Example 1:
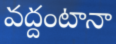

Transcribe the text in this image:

వద్దంటానా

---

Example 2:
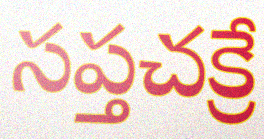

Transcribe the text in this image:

సప్తచక్రే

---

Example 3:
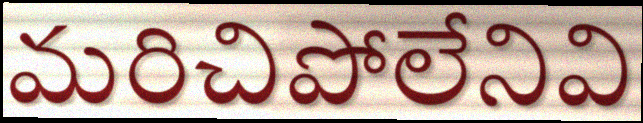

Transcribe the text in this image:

మరిచిపోలేనివి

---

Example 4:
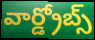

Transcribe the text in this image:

వార్డ్రోబ్స్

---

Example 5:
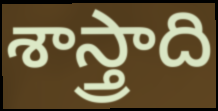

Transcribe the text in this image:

శాస్త్రాది